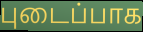
புடைப்பாக